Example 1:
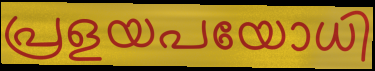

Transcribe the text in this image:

പ്രളയപയോധി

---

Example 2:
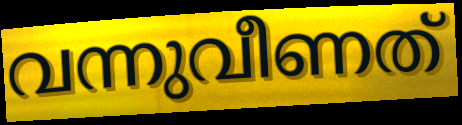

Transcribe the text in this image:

വന്നുവീണത്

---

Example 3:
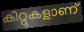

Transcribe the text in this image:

കിറ്റുകളാണ്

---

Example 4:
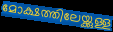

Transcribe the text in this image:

മോക്ഷത്തിലേയ്ക്കുള്ള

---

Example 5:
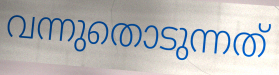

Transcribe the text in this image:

വന്നുതൊടുന്നത്